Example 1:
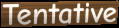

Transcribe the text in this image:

Tentative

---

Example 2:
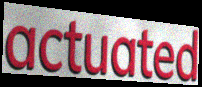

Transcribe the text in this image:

actuated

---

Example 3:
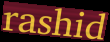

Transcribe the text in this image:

rashid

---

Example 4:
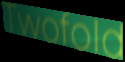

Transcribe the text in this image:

Twofold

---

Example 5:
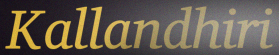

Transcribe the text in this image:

Kallandhiri